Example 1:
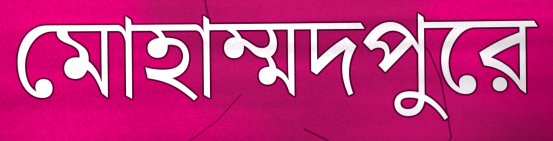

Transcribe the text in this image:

মোহাম্মদপুরে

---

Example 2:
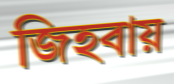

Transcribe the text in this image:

জিহবায়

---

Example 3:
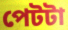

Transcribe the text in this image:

পেটটা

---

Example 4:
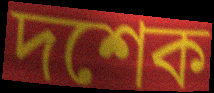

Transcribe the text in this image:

দশেক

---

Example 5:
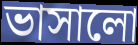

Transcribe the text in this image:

ভাসালো